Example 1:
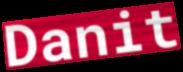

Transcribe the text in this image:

Danit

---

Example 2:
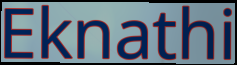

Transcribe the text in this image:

Eknathi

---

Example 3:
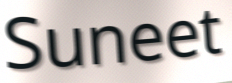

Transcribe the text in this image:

Suneet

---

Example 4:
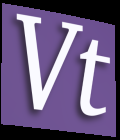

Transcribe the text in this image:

Vt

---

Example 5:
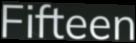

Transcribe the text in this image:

Fifteen